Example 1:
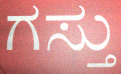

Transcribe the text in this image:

ಗಸ್ತು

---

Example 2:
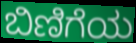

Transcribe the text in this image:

ಬಿಣಿಗೆಯ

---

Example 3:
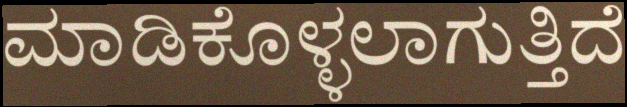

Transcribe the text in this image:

ಮಾಡಿಕೊಳ್ಳಲಾಗುತ್ತಿದೆ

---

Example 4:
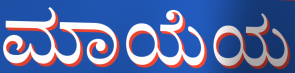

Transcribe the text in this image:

ಮಾಯೆಯ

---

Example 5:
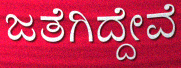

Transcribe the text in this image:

ಜತೆಗಿದ್ದೇವೆ